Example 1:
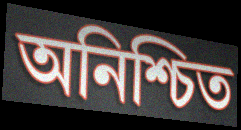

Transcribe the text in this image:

অনিশ্চিত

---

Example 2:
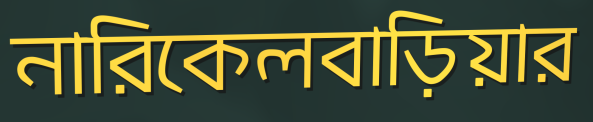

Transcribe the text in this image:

নারিকেলবাড়িয়ার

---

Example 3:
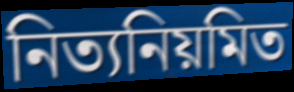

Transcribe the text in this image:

নিত্যনিয়মিত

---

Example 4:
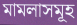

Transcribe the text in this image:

মামলাসমূহ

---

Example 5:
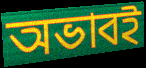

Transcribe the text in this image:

অভাবই